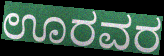
ಊರವರ